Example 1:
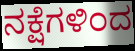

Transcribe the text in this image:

ನಕ್ಷೆಗಳಿಂದ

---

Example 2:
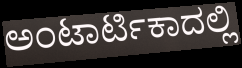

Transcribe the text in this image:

ಅಂಟಾರ್ಟಿಕಾದಲ್ಲಿ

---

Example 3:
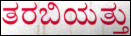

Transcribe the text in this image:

ತರಬಿಯತ್ತು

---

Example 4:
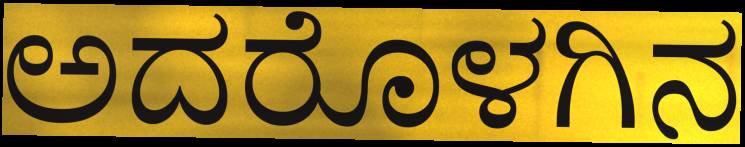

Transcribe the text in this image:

ಅದರೊಳಗಿನ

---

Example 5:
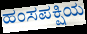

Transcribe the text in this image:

ಹಂಸಪಕ್ಷಿಯ